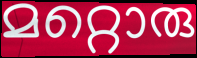
മറ്റൊരു